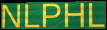
NLPHL